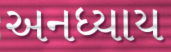
અનધ્યાય